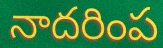
నాదరింప